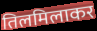
तिलमिलाकर